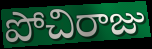
పోచిరాజు